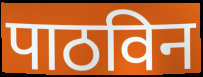
पाठविन